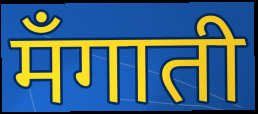
मँगाती